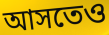
আসতেও